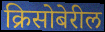
क्रिसोबेरील